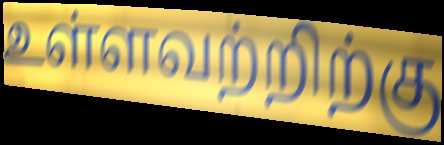
உள்ளவற்றிற்கு